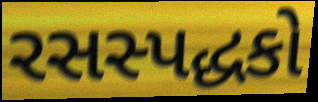
રસસ્પદ્ધકો